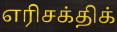
எரிசக்திக்